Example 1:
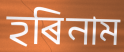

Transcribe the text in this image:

হৰিনাম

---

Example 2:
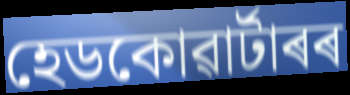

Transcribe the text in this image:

হেডকোৱাৰ্টাৰৰ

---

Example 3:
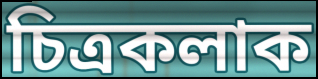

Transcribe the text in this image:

চিত্ৰকলাক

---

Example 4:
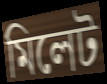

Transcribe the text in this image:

মিলেট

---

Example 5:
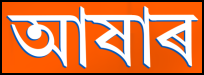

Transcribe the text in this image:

আষাৰ